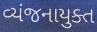
વ્યંજનાયુક્ત